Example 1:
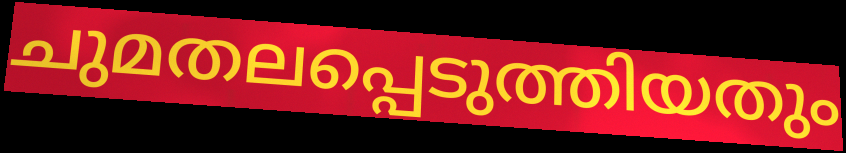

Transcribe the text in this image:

ചുമതലപ്പെടുത്തിയതും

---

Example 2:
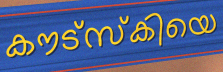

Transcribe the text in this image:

കൗട്സ്കിയെ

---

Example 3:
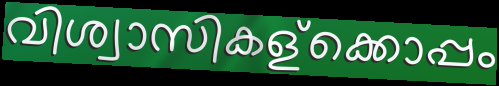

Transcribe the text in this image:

വിശ്വാസികള്ക്കൊപ്പം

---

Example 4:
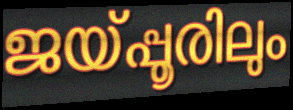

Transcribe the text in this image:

ജയ്പ്പൂരിലും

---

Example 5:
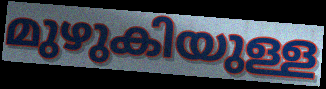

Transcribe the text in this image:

മുഴുകിയുള്ള